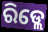
ରିଡ୍ଲେ